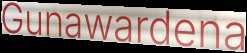
Gunawardena